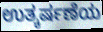
ಉತ್ಕರ್ಷಣೆಯ